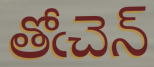
తోఁచెన్